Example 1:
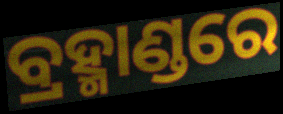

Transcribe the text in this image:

ବ୍ରହ୍ମାଣ୍ଡରେ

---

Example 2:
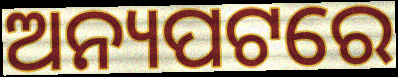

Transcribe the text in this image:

ଅନ୍ୟପଟରେ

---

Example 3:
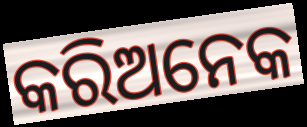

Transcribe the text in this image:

କରିଅନେକ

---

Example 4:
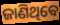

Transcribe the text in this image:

ଜାଣିଥିବେ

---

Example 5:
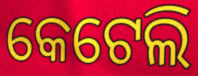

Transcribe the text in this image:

କେଟେଲି